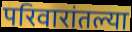
परिवारांतल्या